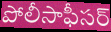
పోలీసాఫీసర్